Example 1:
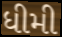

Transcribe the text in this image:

ધીમી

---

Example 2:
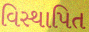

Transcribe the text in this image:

વિસ્થાપિત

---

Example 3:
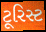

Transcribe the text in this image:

ટૂરિસ્ટ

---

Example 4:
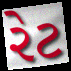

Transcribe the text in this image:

રેટ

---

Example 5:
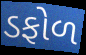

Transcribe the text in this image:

ડફોળ